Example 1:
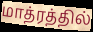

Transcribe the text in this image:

மாத்ரத்தில்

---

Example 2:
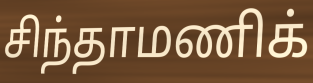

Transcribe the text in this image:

சிந்தாமணிக்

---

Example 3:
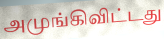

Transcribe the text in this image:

அமுங்கிவிட்டது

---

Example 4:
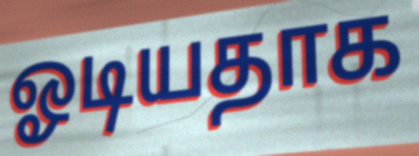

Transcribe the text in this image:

ஓடியதாக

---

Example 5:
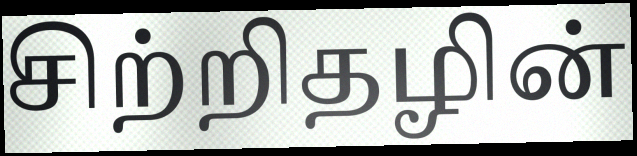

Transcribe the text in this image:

சிற்றிதழின்